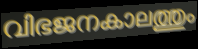
വിഭജനകാലത്തും